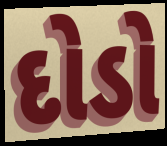
દોડો